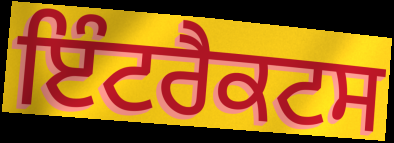
ਇੰਟਰੈਕਟਸ